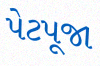
પેટપૂજા